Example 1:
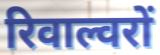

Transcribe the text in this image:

रिवाल्वरों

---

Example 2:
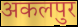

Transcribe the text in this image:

अकलपुर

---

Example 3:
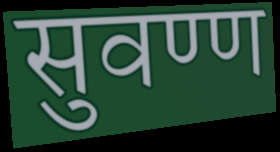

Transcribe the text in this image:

सुवण्ण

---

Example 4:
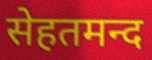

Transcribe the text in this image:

सेहतमन्द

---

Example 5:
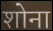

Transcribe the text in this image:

शोना